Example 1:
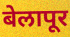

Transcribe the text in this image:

बेलापूर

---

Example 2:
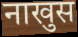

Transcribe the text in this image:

नाखुस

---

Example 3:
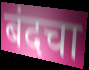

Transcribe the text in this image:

बंदचा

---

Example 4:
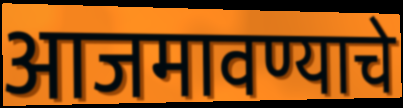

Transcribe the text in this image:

आजमावण्याचे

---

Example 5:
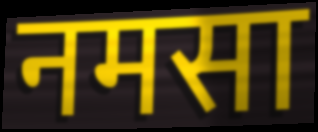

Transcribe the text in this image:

नमसा